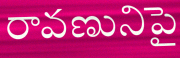
రావణునిపై